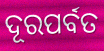
ଦୂରପର୍ବତ